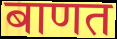
बाणत